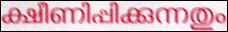
ക്ഷീണിപ്പിക്കുന്നതും